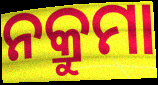
ନକ୍ରୁମା